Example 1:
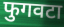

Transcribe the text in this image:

फुगवटा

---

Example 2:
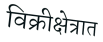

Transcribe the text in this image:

विक्रीक्षेत्रात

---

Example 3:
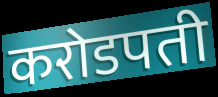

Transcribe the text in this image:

करोडपती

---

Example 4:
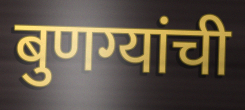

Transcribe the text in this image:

बुणग्यांची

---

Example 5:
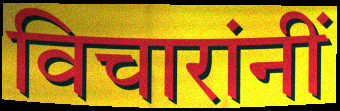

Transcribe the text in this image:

विचारांनीं